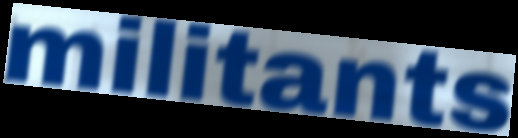
militants